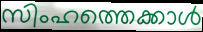
സിംഹത്തെക്കാൾ